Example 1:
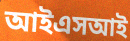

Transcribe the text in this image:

আইএসআই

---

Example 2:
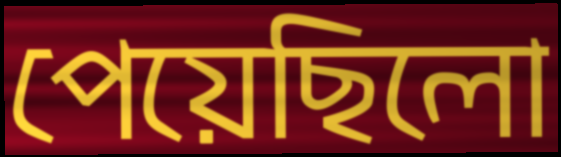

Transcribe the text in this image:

পেয়েছিলো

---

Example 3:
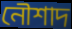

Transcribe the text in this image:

নৌশাদ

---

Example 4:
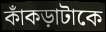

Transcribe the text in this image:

কাঁকড়াটাকে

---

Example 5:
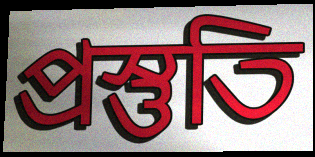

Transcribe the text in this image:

প্রস্তুতি